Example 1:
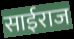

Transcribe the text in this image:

साईराज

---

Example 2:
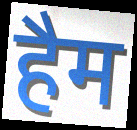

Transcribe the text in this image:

हैम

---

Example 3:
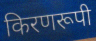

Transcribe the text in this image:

किरणरूपी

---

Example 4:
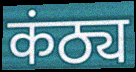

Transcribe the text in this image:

कंठ्य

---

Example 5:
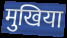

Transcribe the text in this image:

मुखिया